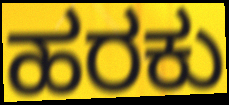
ಹರಕು